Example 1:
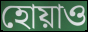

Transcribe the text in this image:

হোয়াও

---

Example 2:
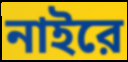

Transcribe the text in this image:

নাইরে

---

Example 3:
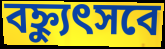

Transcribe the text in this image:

বহ্ন্যুৎসবে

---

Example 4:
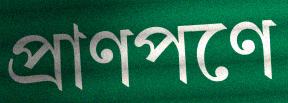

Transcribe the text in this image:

প্রাণপণে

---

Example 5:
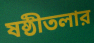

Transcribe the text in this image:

ষষ্ঠীতলার